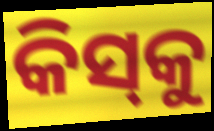
କିସ୍‌କୁ